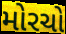
મોરચો